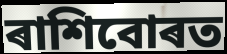
ৰাশিবোৰত